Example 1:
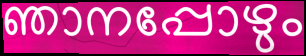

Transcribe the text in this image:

ഞാനപ്പോഴും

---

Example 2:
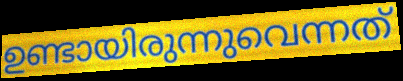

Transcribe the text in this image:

ഉണ്ടായിരുന്നുവെന്നത്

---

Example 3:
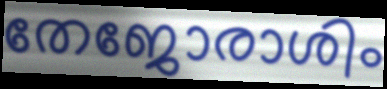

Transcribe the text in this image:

തേജോരാശിം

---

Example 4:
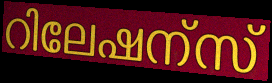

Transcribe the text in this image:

റിലേഷന്സ്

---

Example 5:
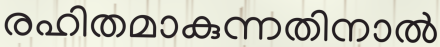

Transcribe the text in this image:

രഹിതമാകുന്നതിനാൽ